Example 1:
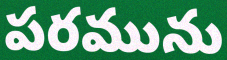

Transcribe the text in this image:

పరమును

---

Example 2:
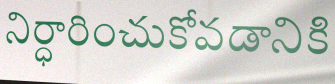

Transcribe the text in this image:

నిర్ధారించుకోవడానికి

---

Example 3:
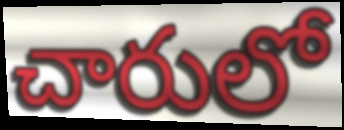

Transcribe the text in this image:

చారులో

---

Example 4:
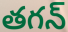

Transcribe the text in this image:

తగన్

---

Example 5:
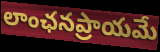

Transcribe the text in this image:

లాంఛనప్రాయమే